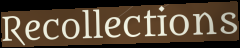
Recollections